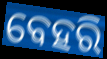
ବେହରି